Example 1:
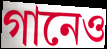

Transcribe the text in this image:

গানেও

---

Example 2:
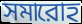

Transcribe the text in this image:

সমারোহ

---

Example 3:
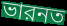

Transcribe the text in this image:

ভারনত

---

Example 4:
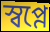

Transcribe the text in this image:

স্বপ্নে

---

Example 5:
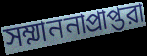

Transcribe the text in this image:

সম্মাননাপ্রাপ্তরা